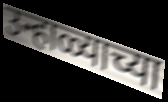
उन्हाळ्याच्या